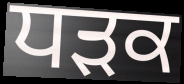
ਧੜਕ